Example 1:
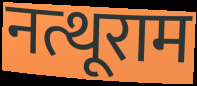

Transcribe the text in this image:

नत्थूराम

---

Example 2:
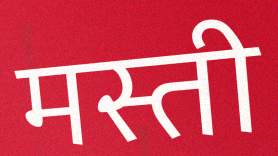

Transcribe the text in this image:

मस्ती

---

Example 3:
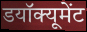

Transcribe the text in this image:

डयॉक्‍यूमेंट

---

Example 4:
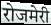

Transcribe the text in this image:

रोजमेरी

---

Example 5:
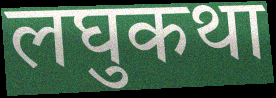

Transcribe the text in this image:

लघुकथा